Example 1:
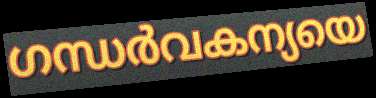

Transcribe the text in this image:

ഗന്ധർവകന്യയെ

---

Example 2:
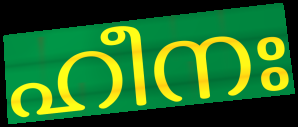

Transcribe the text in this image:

ഹീനഃ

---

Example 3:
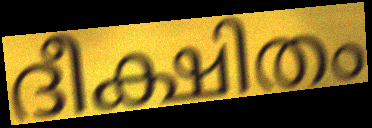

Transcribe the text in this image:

ദീക്ഷിതം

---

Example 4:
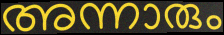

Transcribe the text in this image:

അന്നാരും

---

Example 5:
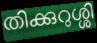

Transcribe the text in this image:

തിക്കുറുശ്ശി